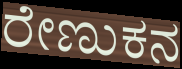
ರೇಣುಕನ